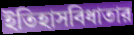
ইতিহাসবিধাতার